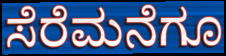
ಸೆರೆಮನೆಗೂ